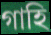
গাহি